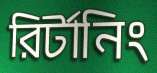
রির্টানিং